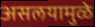
असलयामुळे